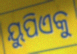
ୟୁପିଏକୁ